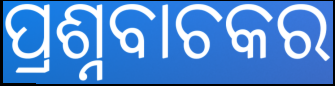
ପ୍ରଶ୍ନବାଚକର